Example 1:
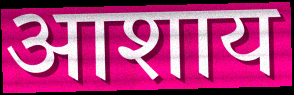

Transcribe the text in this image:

आशाय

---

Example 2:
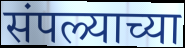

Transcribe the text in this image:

संपल्याच्या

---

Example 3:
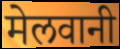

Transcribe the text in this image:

मेलवानी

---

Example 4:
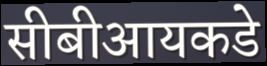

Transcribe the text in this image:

सीबीआयकडे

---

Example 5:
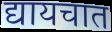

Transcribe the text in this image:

द्यायचात